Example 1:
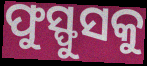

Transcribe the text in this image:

ଫୁସ୍ଫୁସକୁ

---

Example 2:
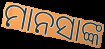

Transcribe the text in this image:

ମାନସାଙ୍କ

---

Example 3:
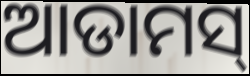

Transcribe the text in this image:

ଆଡାମସ୍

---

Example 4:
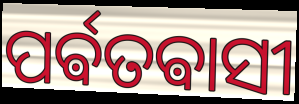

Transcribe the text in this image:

ପର୍ଵତଵାସୀ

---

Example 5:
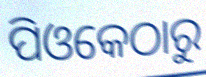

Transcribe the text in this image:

ପିଓକେଠାରୁ